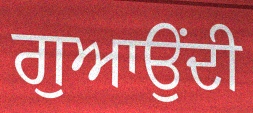
ਗੁਆਉਂਦੀ